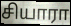
சியாரா